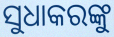
ସୁଧାକରଙ୍କୁ